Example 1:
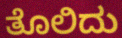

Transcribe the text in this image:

ತೊಲಿದು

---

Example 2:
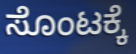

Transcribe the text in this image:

ಸೊಂಟಕ್ಕೆ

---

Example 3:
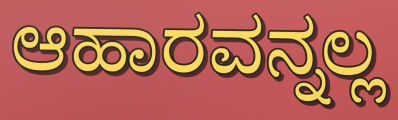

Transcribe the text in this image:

ಆಹಾರವನ್ನಲ್ಲ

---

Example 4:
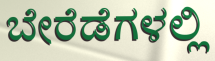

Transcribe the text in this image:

ಬೇರೆಡೆಗಳಲ್ಲಿ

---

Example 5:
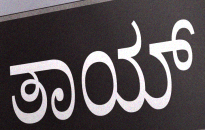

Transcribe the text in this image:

ತಾಯ್